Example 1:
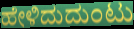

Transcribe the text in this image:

ಹೇಳಿದುದುಂಟು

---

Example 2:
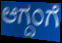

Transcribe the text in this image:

ಆಗ್ದಂಗೆ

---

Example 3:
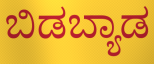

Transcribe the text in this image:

ಬಿಡಬ್ಯಾಡ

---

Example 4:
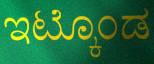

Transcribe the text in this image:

ಇಟ್ಕೊಂಡ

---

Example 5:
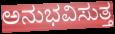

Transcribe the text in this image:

ಅನುಭವಿಸುತ್ತ